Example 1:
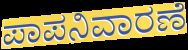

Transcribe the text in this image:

ಪಾಪನಿವಾರಣೆ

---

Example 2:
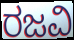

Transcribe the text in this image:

ರಜವಿ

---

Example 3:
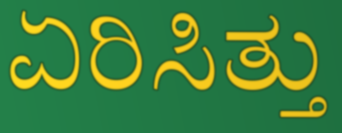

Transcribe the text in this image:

ಏರಿಸಿತ್ತು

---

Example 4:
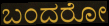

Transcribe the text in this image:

ಬಂದರೋ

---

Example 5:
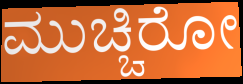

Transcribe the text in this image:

ಮುಚ್ಚಿರೋ